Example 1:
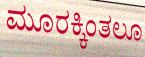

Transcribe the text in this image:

ಮೂರಕ್ಕಿಂತಲೂ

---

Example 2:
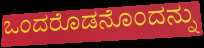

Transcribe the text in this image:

ಒಂದರೊಡನೊಂದನ್ನು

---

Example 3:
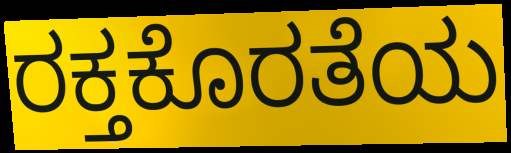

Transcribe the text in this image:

ರಕ್ತಕೊರತೆಯ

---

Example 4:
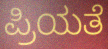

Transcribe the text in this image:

ಪ್ರಿಯತೆ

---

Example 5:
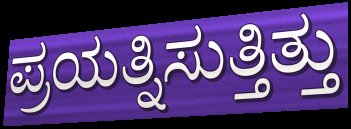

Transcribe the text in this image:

ಪ್ರಯತ್ನಿಸುತ್ತಿತ್ತು